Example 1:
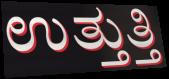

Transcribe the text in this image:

ಉತ್ತುತ್ತಿ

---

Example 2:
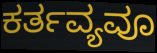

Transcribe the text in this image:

ಕರ್ತವ್ಯವೂ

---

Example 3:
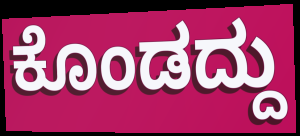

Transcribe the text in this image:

ಕೊಂಡದ್ದು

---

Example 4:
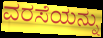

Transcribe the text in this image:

ವರಸೆಯನ್ನು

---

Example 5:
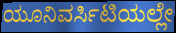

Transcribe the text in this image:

ಯೂನಿವರ್ಸಿಟಿಯಲ್ಲೇ